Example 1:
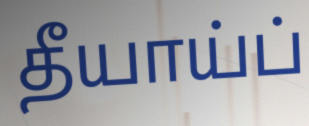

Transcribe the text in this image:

தீயாய்ப்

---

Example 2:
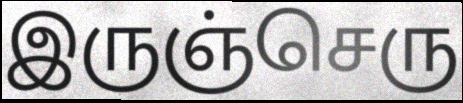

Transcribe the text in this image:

இருஞ்செரு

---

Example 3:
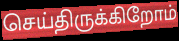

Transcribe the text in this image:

செய்திருக்கிறோம்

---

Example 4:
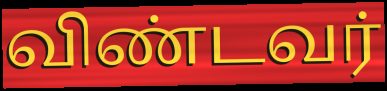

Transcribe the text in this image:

விண்டவர்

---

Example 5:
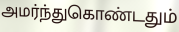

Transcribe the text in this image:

அமர்ந்துகொண்டதும்